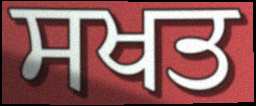
ਸਖਤ